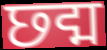
छ्द्म